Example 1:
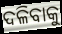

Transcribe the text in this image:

ଦଳିବାକୁ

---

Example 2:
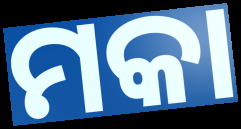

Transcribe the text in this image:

ମକା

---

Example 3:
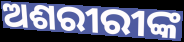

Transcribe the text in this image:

ଅଶରୀରୀଙ୍କ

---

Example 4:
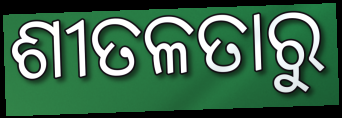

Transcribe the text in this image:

ଶୀତଳତାରୁ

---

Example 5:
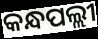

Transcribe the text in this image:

କନ୍ଧପଲ୍ଲୀ